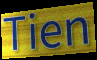
Tien